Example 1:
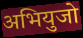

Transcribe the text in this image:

अभियुजो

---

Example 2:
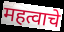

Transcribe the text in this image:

महत्वाचे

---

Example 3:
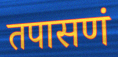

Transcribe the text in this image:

तपासणं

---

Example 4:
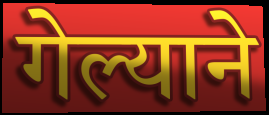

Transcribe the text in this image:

गेल्‍याने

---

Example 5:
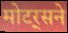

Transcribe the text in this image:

मोटर्सने